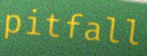
pitfall